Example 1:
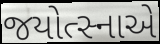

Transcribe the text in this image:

જયોત્સ્નાએ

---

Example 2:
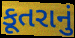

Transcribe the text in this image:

કૂતરાનું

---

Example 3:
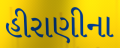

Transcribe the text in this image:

હીરાણીના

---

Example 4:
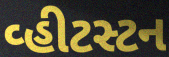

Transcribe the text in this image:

વ્હીટસ્ટન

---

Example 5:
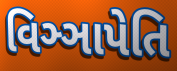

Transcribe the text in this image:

વિઞ્ઞાપેતિ